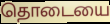
தொடையை